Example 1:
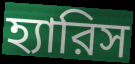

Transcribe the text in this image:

হ্যারিস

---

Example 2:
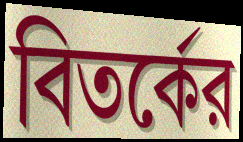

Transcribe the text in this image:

বিতর্কের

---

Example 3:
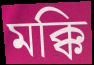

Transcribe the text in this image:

মক্কি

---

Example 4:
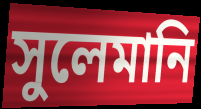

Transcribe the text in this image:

সুলেমানি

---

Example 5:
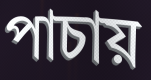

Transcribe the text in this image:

পাচায়